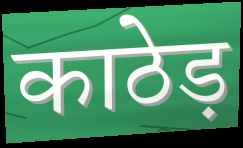
काठेड़